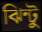
ঝিন্টু